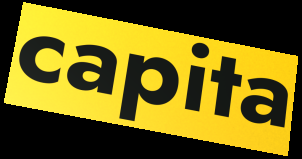
capita